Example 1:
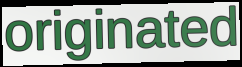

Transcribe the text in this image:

originated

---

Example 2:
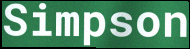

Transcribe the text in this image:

Simpson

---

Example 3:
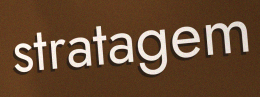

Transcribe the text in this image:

stratagem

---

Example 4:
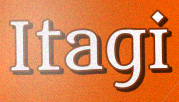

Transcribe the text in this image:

Itagi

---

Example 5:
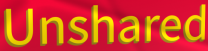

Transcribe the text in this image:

Unshared